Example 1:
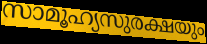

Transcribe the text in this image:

സാമൂഹ്യസുരക്ഷയും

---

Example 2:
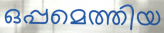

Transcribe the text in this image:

ഒപ്പമെത്തിയ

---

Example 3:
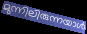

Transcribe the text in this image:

മുന്നിലിരുന്നയാൾ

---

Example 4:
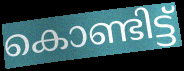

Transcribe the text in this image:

കൊണ്ടിട്ട്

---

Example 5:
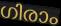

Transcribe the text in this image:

ഗിരാം